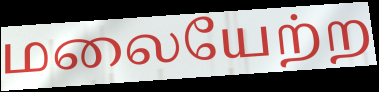
மலையேற்ற